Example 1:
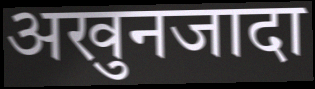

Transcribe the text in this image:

अखुनजादा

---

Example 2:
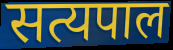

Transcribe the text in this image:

सत्यपाल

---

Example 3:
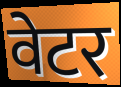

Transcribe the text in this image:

वेटर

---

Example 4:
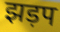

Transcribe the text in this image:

झड़प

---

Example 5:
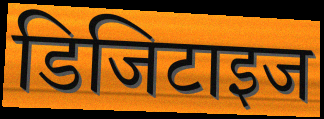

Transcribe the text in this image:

डिजिटाइज